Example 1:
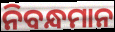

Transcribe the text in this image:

ନିବନ୍ଧମାନ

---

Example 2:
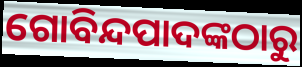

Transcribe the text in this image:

ଗୋବିନ୍ଦପାଦଙ୍କଠାରୁ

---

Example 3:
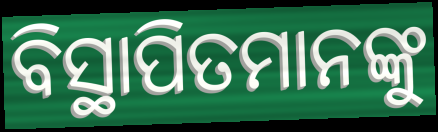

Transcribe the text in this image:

ବିସ୍ଥାପିତମାନଙ୍କୁ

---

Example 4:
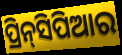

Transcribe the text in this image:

ପ୍ରିନ୍‌ସିପିଆର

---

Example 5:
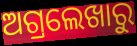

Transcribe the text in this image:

ଅଗ୍ରଲେଖାରୁ